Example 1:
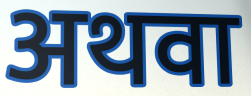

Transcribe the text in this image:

अथवा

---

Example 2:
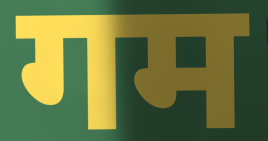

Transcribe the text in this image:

गम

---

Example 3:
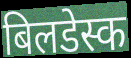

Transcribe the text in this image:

बिलडेस्क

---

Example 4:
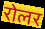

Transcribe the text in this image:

रोलर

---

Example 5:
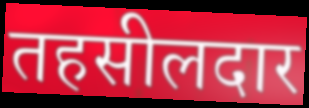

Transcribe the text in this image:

तहसीलदार